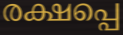
രക്ഷപ്പെ